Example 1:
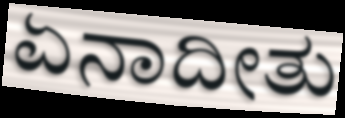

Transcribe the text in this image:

ಏನಾದೀತು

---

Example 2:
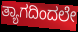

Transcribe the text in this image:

ತ್ಯಾಗದಿಂದಲೇ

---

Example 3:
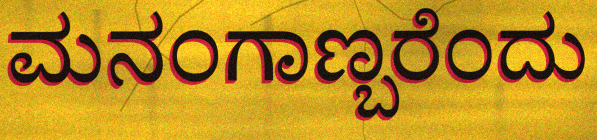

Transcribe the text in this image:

ಮನಂಗಾಣ್ಬರೆಂದು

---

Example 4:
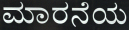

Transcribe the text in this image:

ಮಾರನೆಯ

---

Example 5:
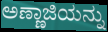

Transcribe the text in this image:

ಅಣ್ಣಾಜಿಯನ್ನು